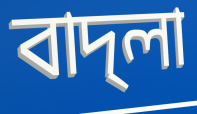
বাদ্‌লা